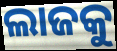
ଲାଜକୁ